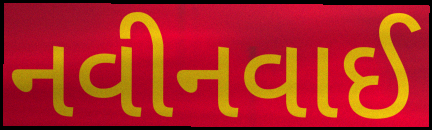
નવીનવાઈ